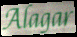
Alagar